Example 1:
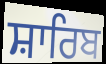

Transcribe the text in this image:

ਸ਼ਾਰਿਬ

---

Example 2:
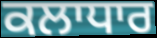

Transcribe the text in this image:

ਕਲਾਧਾਰ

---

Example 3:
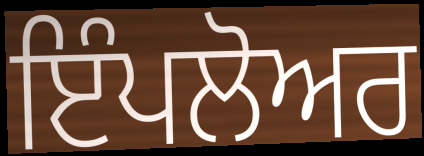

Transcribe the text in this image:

ਇੰਪਲੋਅਰ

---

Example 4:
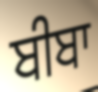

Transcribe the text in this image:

ਬੀਬਾ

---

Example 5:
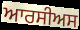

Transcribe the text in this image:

ਆਰਸੀਅਸ